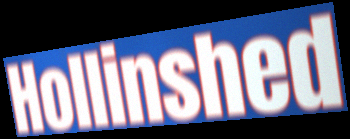
Hollinshed